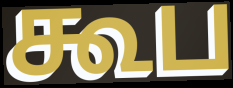
கூப